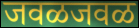
जवळजवळ